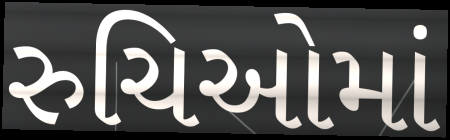
રુચિઓમાં